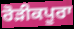
ਰੋੜੀਕਪੂਰਾ